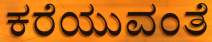
ಕರೆಯುವಂತೆ